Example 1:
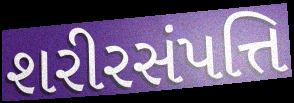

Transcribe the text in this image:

શરીરસંપત્તિ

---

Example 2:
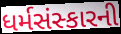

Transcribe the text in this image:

ધર્મસંસ્કારની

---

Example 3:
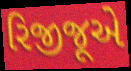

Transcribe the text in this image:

રિજીજૂએ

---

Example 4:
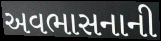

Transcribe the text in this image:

અવભાસનાની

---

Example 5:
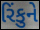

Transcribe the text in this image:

રિંકુને